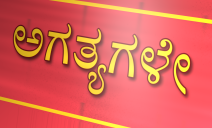
ಅಗತ್ಯಗಳೇ